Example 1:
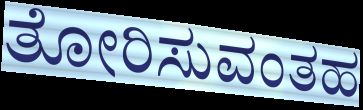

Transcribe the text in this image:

ತೋರಿಸುವಂತಹ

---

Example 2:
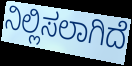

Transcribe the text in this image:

ನಿಲ್ಲಿಸಲಾಗಿದೆ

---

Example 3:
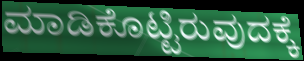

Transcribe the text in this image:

ಮಾಡಿಕೊಟ್ಟಿರುವುದಕ್ಕೆ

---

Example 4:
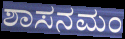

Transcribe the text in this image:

ಶಾಸನಮಂ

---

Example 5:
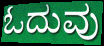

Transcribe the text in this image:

ಓದುವು